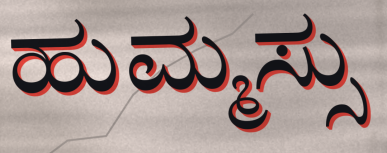
ಹುಮ್ಮಸ್ಸು